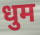
धुम